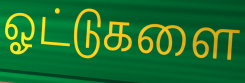
ஓட்டுகளை